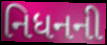
નિધનની